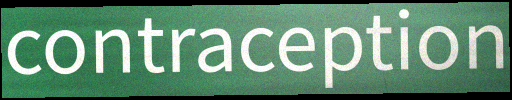
contraception